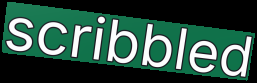
scribbled